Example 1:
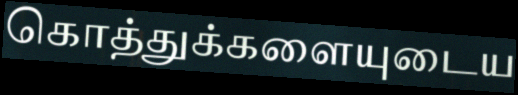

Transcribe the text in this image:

கொத்துக்களையுடைய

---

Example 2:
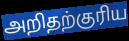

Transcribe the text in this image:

அறிதற்குரிய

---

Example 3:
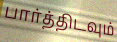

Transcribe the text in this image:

பார்த்திடவும்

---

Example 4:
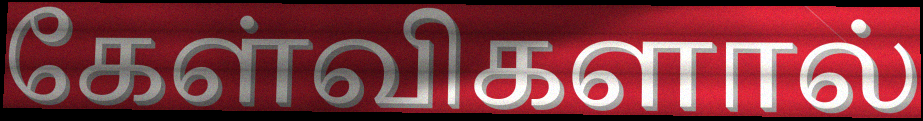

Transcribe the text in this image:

கேள்விகளால்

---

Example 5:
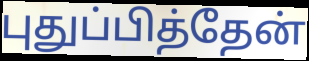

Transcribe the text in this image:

புதுப்பித்தேன்